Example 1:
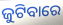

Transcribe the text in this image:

ଜୁଟିବାରେ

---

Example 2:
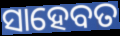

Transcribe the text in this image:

ସାହେବତ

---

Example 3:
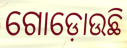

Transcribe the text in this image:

ଗୋଡ଼ୋଉଛି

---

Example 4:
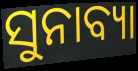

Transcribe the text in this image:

ସୁନାବ୍ୟା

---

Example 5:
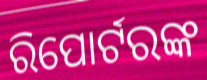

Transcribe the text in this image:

ରିପୋର୍ଟରଙ୍କ